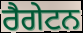
ਰੈਗੇਟਨ